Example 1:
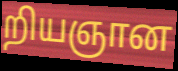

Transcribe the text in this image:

றியஞான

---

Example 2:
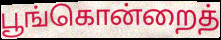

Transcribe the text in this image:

பூங்கொன்றைத்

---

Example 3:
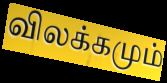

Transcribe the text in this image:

விலக்கமும்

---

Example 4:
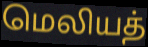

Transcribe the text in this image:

மெலியத்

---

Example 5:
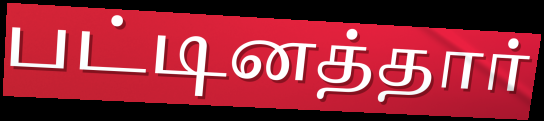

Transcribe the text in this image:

பட்டினத்தார்